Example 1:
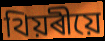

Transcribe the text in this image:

থিয়ৰীয়ে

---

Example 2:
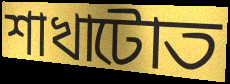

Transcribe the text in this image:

শাখাটোত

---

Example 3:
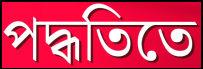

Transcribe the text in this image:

পদ্ধতিতে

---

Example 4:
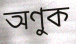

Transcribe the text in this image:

অণুক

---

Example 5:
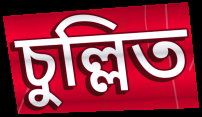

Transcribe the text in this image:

চুল্লিত